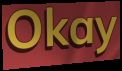
Okay